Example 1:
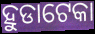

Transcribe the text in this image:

ହୁଡାଟେକା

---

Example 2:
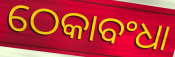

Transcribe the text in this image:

ଠେକାବଂଧା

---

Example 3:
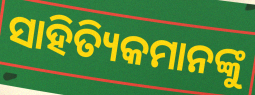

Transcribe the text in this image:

ସାହିତ୍ୟିକମାନଙ୍କୁ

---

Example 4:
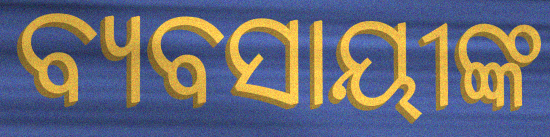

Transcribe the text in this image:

ବ୍ୟବସାୟୀଙ୍କ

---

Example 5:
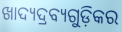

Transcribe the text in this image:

ଖାଦ୍ୟଦ୍ରବ୍ୟଗୁଡ଼ିକର